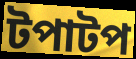
টপাটপ